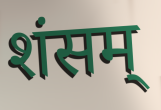
शंसम्